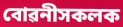
বোৱনীসকলক